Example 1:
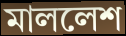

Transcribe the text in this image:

মাললেশ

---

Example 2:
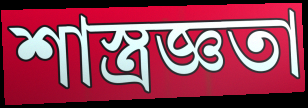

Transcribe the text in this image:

শাস্ত্রজ্ঞতা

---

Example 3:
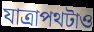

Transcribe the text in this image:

যাত্রাপথটাও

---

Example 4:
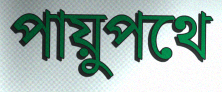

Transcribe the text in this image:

পায়ুপথে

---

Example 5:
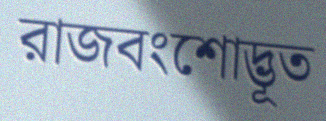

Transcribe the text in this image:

রাজবংশোদ্ভূত